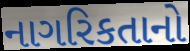
નાગરિકતાનો